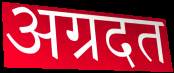
अग्रदत